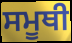
ਸਮੂਥੀ